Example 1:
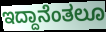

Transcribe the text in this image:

ಇದ್ದಾನೆಂತಲೂ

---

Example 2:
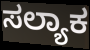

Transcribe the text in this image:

ಸಲ್ಯಾಕ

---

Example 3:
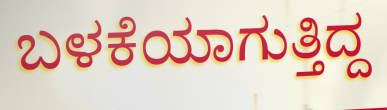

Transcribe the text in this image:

ಬಳಕೆಯಾಗುತ್ತಿದ್ದ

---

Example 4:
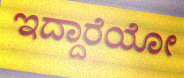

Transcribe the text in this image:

ಇದ್ದಾರೆಯೋ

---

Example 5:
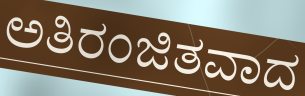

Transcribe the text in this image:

ಅತಿರಂಜಿತವಾದ